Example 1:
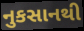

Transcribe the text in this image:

નુકસાનથી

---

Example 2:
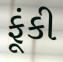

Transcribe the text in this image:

ફૂંકી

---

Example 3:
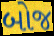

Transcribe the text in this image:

બોજ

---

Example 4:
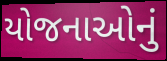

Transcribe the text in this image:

યોજનાઓનું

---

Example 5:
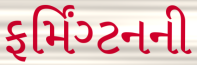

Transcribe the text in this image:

ફર્મિંગ્ટનની